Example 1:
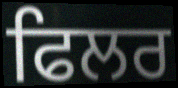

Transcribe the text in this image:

ਫਿਲਰ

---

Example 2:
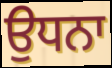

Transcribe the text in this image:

ਉਧਨਾ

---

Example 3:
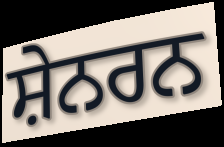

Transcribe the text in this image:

ਸ਼ੇਨਰਨ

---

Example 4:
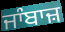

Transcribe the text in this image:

ਜਾੰਬਾਜ਼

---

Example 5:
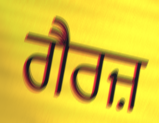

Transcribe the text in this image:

ਗੈਰਜ਼